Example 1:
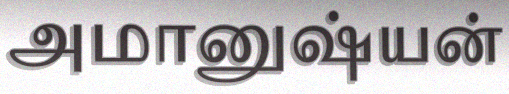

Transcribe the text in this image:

அமானுஷ்யன்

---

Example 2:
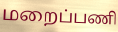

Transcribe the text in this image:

மறைப்பணி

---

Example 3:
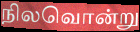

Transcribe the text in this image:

நிலவொன்று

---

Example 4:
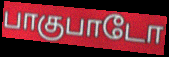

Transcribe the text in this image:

பாகுபாடோ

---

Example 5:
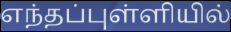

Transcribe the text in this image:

எந்தப்புள்ளியில்